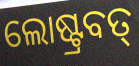
ଲୋଷ୍ଟ୍ରବତ୍